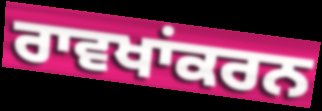
ਰਾਵਖਾਂਕਰਨ